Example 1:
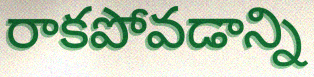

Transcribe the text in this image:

రాకపోవడాన్ని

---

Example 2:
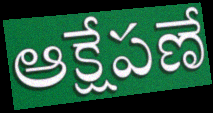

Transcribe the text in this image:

ఆక్షేపణే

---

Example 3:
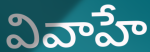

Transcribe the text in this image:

వివాహే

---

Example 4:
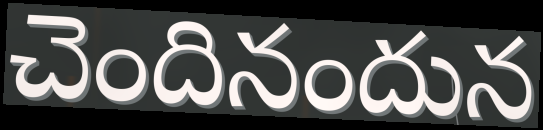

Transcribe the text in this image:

చెందినందున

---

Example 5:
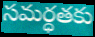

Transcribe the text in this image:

సమర్ధతకు